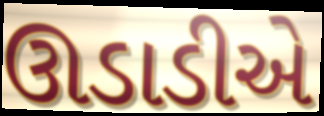
ઊડાડીએ